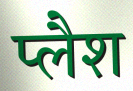
प्लैश